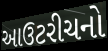
આઉટરીચનો